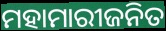
ମହାମାରୀଜନିତ